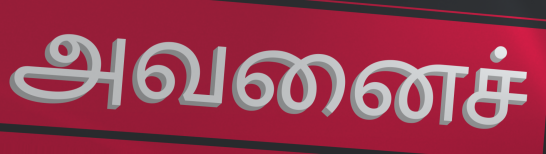
அவனைச்